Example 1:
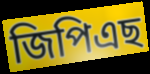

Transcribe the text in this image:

জিপিএছ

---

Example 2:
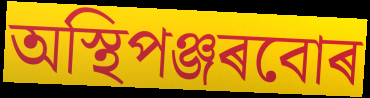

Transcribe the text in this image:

অস্থিপঞ্জৰবোৰ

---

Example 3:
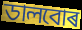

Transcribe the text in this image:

ডালবোৰ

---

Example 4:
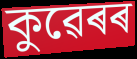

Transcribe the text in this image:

কুৱেৰৰ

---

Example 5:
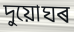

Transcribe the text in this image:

দুয়োঘৰ